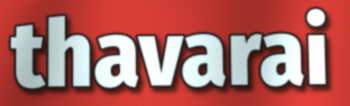
thavarai